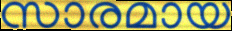
സാരമായ